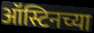
ऑस्टिनच्या